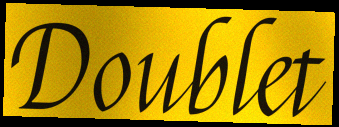
Doublet